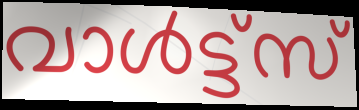
വാൾട്ട്സ്